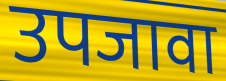
उपजावा